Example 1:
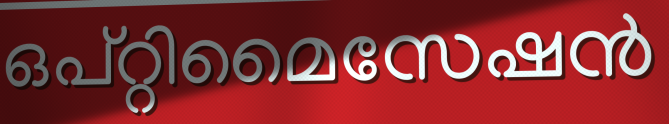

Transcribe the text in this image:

ഒപ്റ്റിമൈസേഷൻ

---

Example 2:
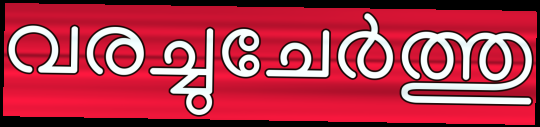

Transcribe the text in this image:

വരച്ചുചേർത്തു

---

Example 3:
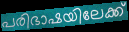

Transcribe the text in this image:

പരിഭാഷയിലേക്ക്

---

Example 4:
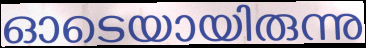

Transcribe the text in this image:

ഓടെയായിരുന്നു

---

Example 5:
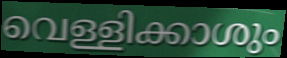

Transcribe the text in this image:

വെള്ളിക്കാശും